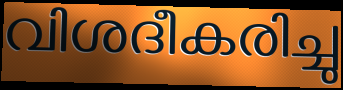
വിശദീകരിച്ചു